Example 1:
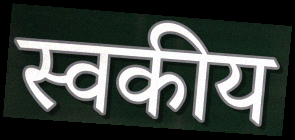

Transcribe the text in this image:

स्वकीय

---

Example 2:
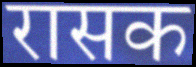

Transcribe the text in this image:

रासक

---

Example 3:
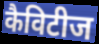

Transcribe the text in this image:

कैविटीज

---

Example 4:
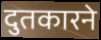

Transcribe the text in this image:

दुतकारने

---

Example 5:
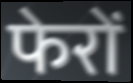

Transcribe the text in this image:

फेरों